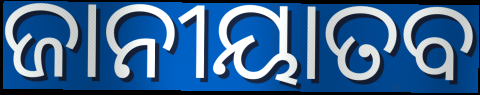
ଜାନୀୟାତବ